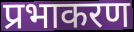
प्रभाकरण